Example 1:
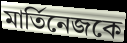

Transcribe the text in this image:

মার্তিনেজকে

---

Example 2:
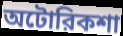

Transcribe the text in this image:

অটোরিকশা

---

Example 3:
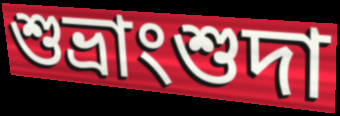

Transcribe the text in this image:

শুভ্রাংশুদা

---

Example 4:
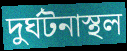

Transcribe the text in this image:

দুর্ঘটনাস্থল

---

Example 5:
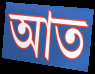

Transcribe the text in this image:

আত